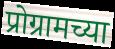
प्रोग्रामच्या